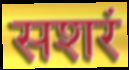
सशरं